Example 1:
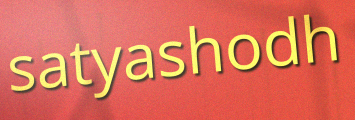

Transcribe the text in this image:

satyashodh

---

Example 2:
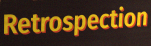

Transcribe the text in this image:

Retrospection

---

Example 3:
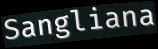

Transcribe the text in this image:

Sangliana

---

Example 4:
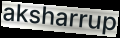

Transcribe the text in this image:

aksharrup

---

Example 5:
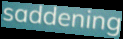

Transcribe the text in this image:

saddening